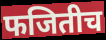
फजितीच